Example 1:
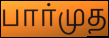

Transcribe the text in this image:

பார்முத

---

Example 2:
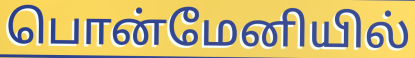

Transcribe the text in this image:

பொன்மேனியில்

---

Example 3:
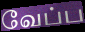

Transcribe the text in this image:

வேப்ப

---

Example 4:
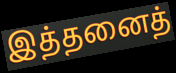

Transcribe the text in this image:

இத்தனைத்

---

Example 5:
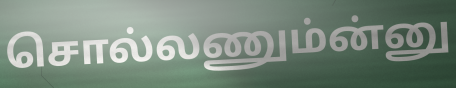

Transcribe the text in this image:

சொல்லணும்ன்னு